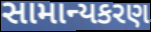
સામાન્યકરણ